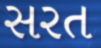
સરત